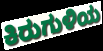
ಕಿರುಗುಳಿಯ